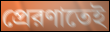
প্রেরণাতেই